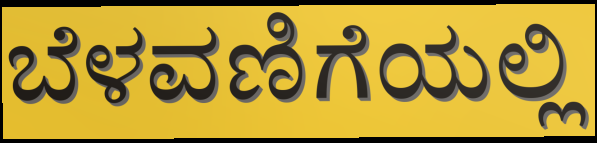
ಬೆಳವಣಿಗೆಯಲ್ಲಿ